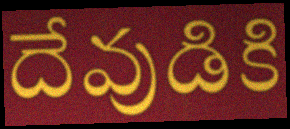
దేవుడికి